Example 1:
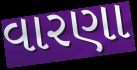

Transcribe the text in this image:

વારણા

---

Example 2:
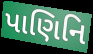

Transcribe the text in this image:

પાણિનિ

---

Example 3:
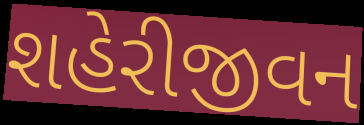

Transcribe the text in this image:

શહેરીજીવન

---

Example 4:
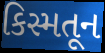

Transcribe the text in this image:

કિસ્મતૂન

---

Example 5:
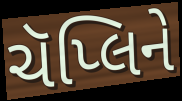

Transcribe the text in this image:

ચૅપ્લિને